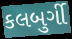
કલબુર્ગી